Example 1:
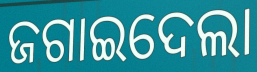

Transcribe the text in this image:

ଜଗାଇଦେଲା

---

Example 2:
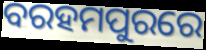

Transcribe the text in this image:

ବରହମପୁରରେ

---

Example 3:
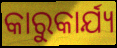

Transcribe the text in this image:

କାରୁକାର୍ଯ୍ୟ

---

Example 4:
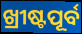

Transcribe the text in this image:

ଖ୍ରୀଷ୍ଟପୂର୍ବ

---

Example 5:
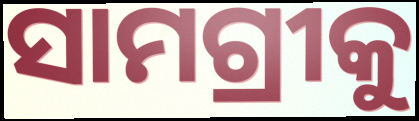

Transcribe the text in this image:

ସାମଗ୍ରୀକୁ